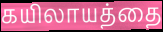
கயிலாயத்தை